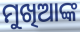
ମୁଖିଆଙ୍କ